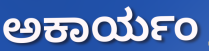
ಅಕಾರ್ಯಂ